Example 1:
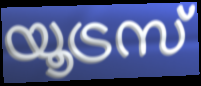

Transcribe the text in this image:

യൂട്രസ്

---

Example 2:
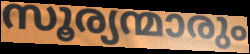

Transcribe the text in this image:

സൂര്യന്മാരും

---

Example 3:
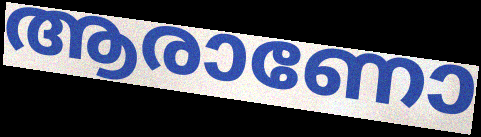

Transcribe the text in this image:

ആരാണോ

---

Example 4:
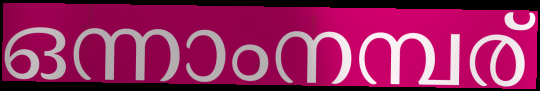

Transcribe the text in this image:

ഒന്നാംനമ്പര്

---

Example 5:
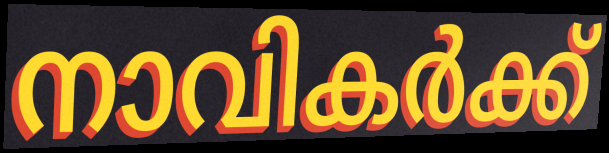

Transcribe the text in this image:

നാവികർക്ക്